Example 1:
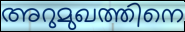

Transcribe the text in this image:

അറുമുഖത്തിനെ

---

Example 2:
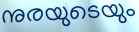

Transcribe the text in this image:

നുരയുടെയും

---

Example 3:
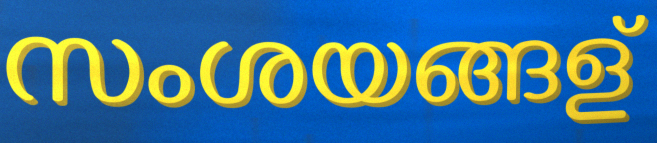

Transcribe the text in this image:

സംശയങ്ങള്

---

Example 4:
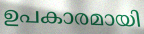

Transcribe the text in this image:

ഉപകാരമായി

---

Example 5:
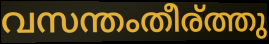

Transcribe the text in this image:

വസന്തംതീര്ത്തു